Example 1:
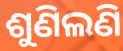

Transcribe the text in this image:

ଶୁଣିଲଣି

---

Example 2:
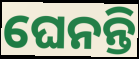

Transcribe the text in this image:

ଘେନନ୍ତି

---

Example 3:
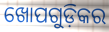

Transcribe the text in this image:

ଖୋପଗୁଡ଼ିକର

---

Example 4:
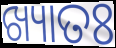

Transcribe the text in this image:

ଖ୍ୟାତଃ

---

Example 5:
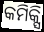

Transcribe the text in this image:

କମିକ୍ସି